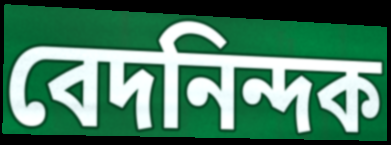
বেদনিন্দক